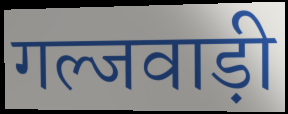
गल्जवाड़ी